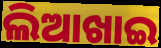
ଲିଆଖାଇ